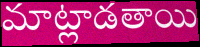
మాట్లాడతాయి